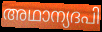
അഥാന്യദപി